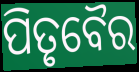
ପିତୃବୈର